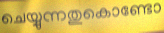
ചെയ്യുന്നതുകൊണ്ടോ